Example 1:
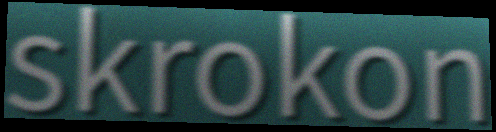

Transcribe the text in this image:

skrokon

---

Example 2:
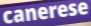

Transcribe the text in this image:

canerese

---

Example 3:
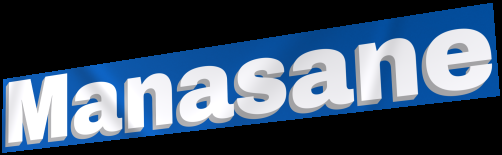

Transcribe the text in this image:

Manasane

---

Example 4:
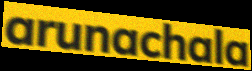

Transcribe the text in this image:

arunachala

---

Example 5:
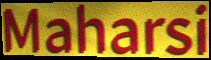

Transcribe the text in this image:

Maharsi